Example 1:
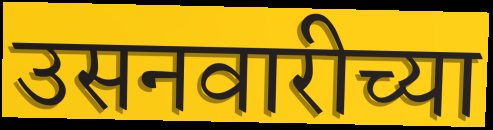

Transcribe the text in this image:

उसनवारीच्या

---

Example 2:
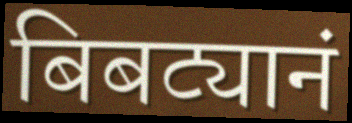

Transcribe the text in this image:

बिबट्यानं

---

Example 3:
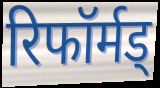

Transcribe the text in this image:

रिफॉर्मड्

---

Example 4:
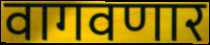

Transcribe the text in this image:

वागवणार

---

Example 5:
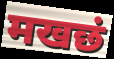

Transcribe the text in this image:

मखछं